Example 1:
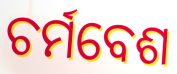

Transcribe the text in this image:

ଚର୍ମବେଶ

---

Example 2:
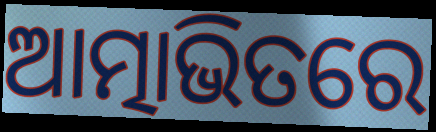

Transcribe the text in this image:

ଆତ୍ମାଭିତରେ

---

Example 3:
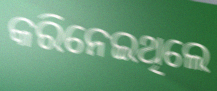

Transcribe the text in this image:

କରିନେଇଥିଲେ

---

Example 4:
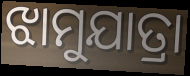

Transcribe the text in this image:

ଝାମୁଯାତ୍ରା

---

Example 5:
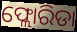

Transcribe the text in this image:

ଫ୍ଲୋରିଡା